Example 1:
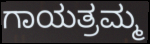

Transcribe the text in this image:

ಗಾಯತ್ರಮ್ಮ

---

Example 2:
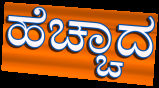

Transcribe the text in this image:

ಹೆಚ್ಚಾದ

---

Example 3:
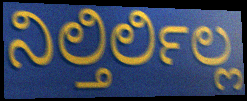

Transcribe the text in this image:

ನಿಲ್ತಿರ್ಲಿಲ್ಲ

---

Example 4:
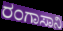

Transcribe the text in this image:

ರಂಗಾಸಾನಿ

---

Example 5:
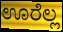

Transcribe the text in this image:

ಊರೆಲ್ಲ